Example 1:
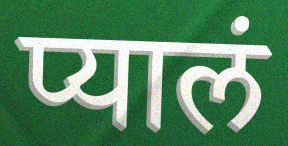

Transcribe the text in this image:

प्यालं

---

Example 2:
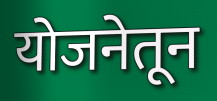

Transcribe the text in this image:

योजनेतून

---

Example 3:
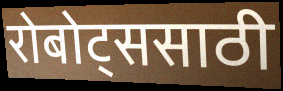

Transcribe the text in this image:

रोबोट्ससाठी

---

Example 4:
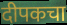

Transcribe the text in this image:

दीपकचा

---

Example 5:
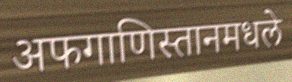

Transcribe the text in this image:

अफगाणिस्तानमधले